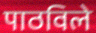
पाठविले